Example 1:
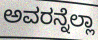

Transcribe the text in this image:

ಅವರನ್ನೆಲ್ಲಾ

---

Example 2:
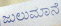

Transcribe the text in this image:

ಜುಲುಮಾನೆ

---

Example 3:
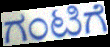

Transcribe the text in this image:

ಗಂಟಿಗೆ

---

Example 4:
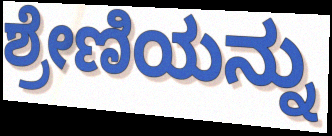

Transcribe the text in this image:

ಶ್ರೇಣಿಯನ್ನು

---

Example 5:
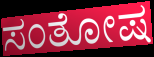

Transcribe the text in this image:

ಸಂತೋಷ